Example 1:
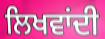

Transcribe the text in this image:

ਲਿਖਵਾਂਦੀ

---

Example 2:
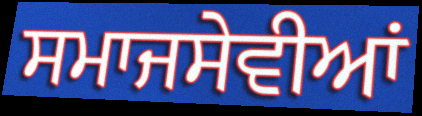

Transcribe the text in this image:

ਸਮਾਜਸੇਵੀਆਂ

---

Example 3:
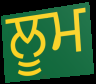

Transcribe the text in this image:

ਲੂਮ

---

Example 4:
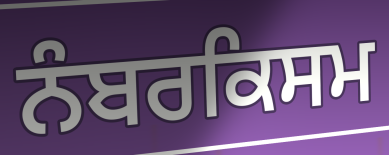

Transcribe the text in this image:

ਨੰਬਰਕਿਸਮ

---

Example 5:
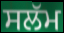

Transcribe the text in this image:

ਸਲੱਮ